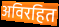
अविरहित